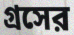
গ্রসের